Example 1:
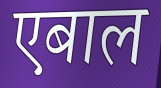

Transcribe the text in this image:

एबाल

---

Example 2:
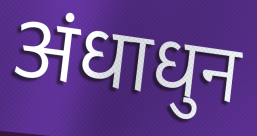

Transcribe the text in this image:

अंधाधुन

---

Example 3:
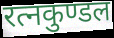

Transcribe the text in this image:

रत्नकुण्डल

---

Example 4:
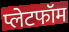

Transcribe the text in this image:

प्लेटफॉम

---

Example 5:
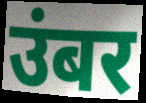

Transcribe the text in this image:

उंबर